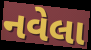
નવેલા